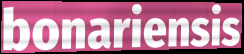
bonariensis